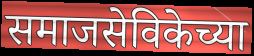
समाजसेविकेच्या